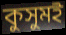
কুসুমই